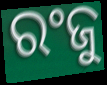
ରଂଜୁ